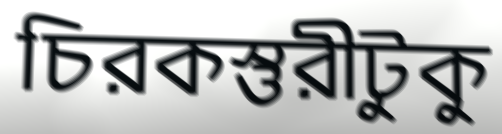
চিরকস্তুরীটুকু